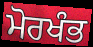
ਮੋਰਖੰਭ